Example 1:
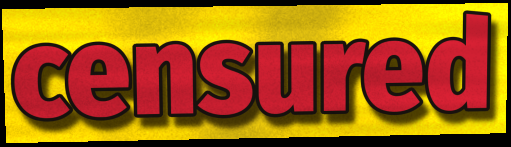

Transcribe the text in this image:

censured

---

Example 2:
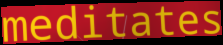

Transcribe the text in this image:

meditates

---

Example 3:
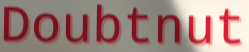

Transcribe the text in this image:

Doubtnut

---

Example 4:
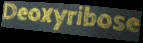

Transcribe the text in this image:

Deoxyribose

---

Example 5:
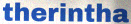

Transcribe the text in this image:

therintha